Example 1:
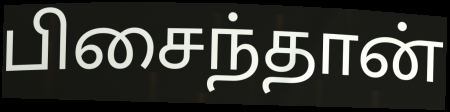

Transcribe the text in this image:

பிசைந்தான்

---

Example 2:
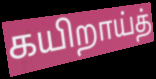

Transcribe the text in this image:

கயிறாய்த்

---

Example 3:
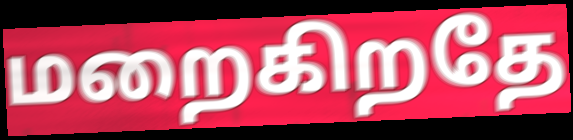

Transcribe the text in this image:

மறைகிறதே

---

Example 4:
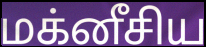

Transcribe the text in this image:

மக்னீசிய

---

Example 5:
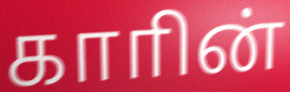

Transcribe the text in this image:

காரின்